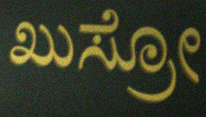
ಖುಸ್ರೋ